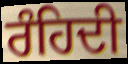
ਰੰਹਿਦੀ